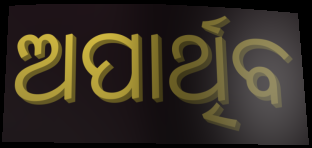
ଅପାର୍ଥିବ